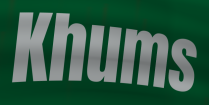
Khums